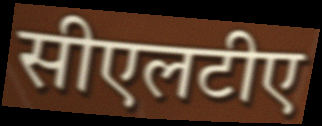
सीएलटीए